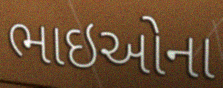
ભાઇઓના